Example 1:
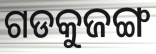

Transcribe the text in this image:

ଗଡକୁଜଙ୍ଗ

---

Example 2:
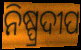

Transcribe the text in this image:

ନିଷ୍ପ୍ରଦୀପ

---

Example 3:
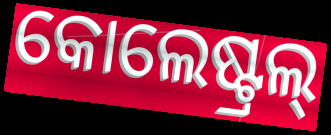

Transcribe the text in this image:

କୋଲେଷ୍ଟ୍ରଲ୍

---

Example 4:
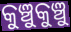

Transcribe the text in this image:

କୁଞ୍ଚୁକୁଞ୍ଚୁ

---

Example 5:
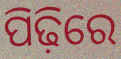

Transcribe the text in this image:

ପିଢ଼ିରେ